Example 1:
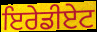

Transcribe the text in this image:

ਇਰੇਡੀਏਟ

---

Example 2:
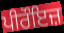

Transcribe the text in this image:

ਪੀਰੌਇਜ਼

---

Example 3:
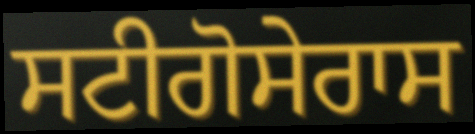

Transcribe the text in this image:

ਸਟੀਗੋਸੇਰਾਸ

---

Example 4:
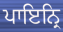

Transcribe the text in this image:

ਪਾਇਨ੍ਰਿ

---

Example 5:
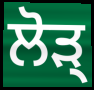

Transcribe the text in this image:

ਲੋੜ੍